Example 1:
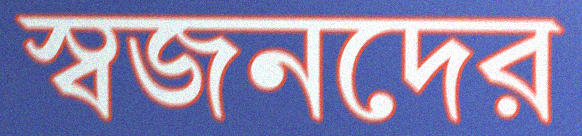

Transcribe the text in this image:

স্বজনদের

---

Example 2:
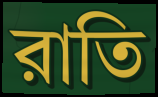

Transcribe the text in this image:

রাতি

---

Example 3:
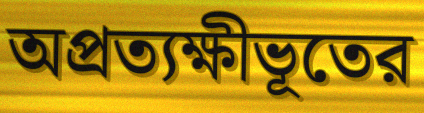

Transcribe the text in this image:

অপ্রত্যক্ষীভূতের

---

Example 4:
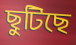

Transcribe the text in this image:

ছুটিছে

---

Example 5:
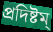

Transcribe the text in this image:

প্রদিষ্টম্